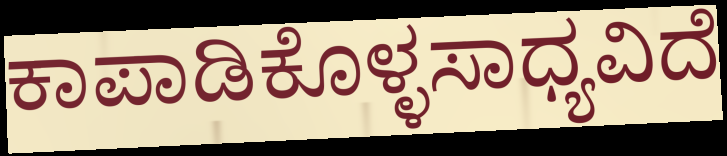
ಕಾಪಾಡಿಕೊಳ್ಳಸಾಧ್ಯವಿದೆ